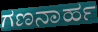
ಗಣನಾರ್ಹ